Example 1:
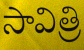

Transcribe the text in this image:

సావిత్రి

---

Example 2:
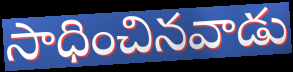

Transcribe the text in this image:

సాధించినవాడు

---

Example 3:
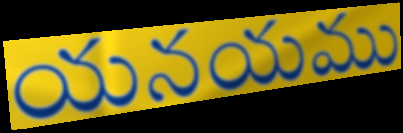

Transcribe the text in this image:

యనయము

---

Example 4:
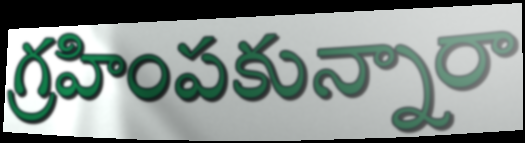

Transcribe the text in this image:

గ్రహింపకున్నారా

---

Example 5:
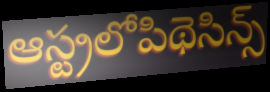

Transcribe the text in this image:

ఆస్ట్రలోపిథెసిన్స్